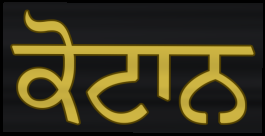
ਕੋਟਾਨ